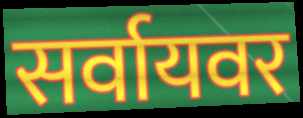
सर्वायवर